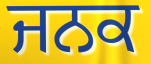
ਜਨਕ